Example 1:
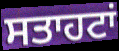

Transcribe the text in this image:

ਸਤਾਹਟਾਂ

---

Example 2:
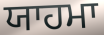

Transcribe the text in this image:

ਯਾਹਮਾ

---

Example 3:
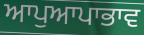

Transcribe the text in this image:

ਆਪੁਆਪਾਭਾਵ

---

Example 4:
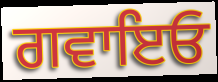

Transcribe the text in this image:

ਗਵਾਇਓ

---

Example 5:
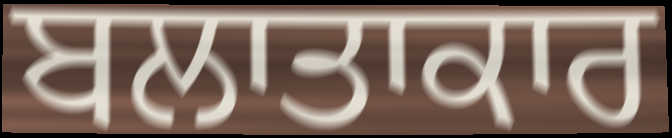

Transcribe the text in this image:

ਬਲਾਤਾਕਾਰ